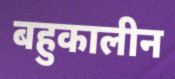
बहुकालीन